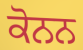
ਕੋਨਨ